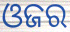
ଓଜର